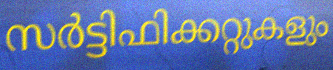
സർട്ടിഫിക്കറ്റുകളും